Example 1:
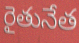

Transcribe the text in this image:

రైతునేత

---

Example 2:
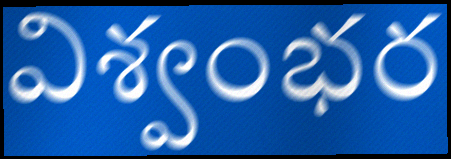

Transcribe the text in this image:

విశ్వంభర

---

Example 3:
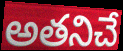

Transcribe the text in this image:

అతనిచే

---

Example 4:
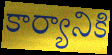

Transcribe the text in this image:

కార్యానికి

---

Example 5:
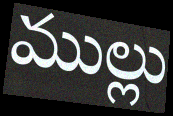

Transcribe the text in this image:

ముల్లు